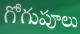
గోగుపూలు